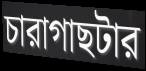
চারাগাছটার